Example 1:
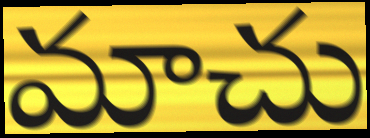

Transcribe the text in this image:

మాచు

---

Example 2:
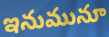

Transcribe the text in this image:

ఇనుమునూ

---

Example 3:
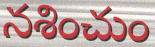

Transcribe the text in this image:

నశించుం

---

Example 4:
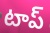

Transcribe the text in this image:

టాప్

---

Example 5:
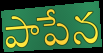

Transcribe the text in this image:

పాపేన